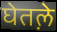
घेतल़े